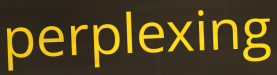
perplexing